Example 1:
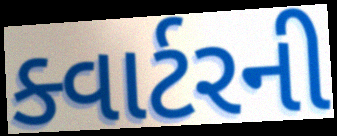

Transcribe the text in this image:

ક્વાર્ટરની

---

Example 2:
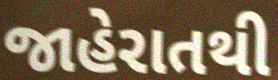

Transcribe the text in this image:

જાહેરાતથી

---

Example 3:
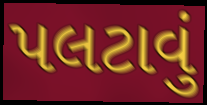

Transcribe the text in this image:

પલટાવું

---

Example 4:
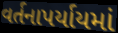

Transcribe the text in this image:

વર્તનાપર્યાયમાં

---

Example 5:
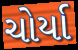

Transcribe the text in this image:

ચોર્યા